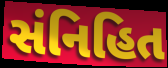
સંનિહિત